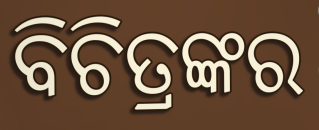
ବିଚିତ୍ରଙ୍କର